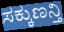
ಸಕ್ಕುಣನ್ತಿ